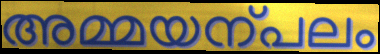
അമ്മയന്പലം